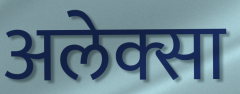
अलेक्‍सा